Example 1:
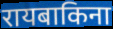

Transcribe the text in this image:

रायबाकिना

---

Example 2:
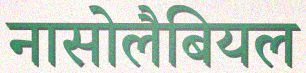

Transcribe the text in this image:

नासोलैबियल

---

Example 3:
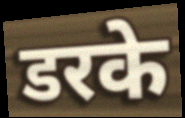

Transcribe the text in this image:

डरके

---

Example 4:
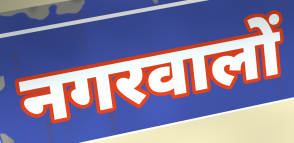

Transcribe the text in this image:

नगरवालों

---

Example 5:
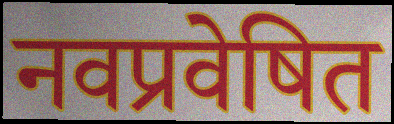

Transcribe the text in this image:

नवप्रवेषित